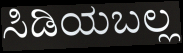
ಸಿಡಿಯಬಲ್ಲ